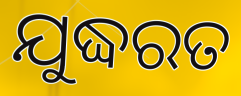
ଯୁଦ୍ଧରତ